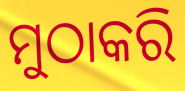
ମୁଠାକରି